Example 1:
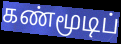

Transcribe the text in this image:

கண்மூடிப்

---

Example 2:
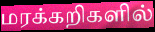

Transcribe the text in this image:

மரக்கறிகளில்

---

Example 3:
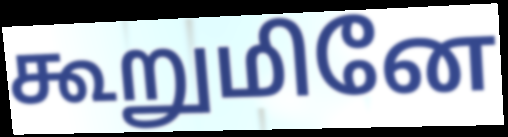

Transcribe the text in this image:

கூறுமினே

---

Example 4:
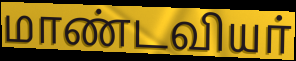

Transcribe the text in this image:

மாண்டவியர்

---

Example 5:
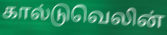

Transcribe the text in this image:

கால்டுவெலின்